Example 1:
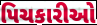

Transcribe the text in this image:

પિચકારીઓ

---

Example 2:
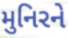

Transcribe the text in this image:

મુનિરને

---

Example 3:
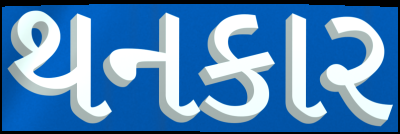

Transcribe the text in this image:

થનકાર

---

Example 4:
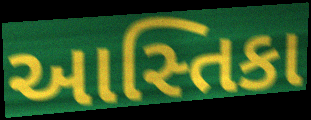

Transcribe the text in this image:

આસ્તિકા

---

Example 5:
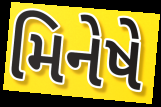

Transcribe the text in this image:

મિનેષે